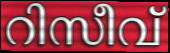
റിസീവ്